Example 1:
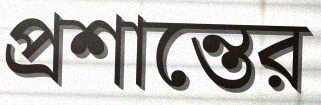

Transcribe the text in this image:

প্রশান্তের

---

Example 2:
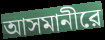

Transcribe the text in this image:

আসমানীরে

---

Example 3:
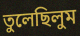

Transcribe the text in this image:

তুলেছিলুম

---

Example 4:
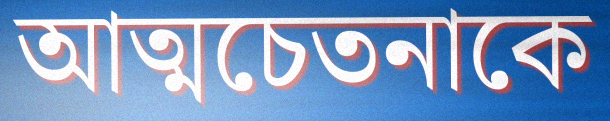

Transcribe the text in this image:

আত্মচেতনাকে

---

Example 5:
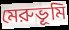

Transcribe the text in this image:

মেরুভূমি